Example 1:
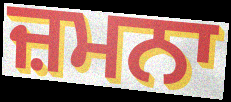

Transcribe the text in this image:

ਜ਼ਮਨਾ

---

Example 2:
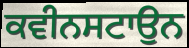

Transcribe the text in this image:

ਕਵੀਨਸਟਾਉਨ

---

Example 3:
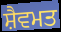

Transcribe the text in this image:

ਸ਼ੈਵਮਤ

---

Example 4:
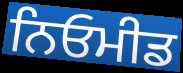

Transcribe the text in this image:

ਨਿਓਮੀਡ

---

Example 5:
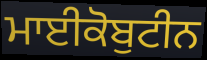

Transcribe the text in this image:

ਮਾਈਕੋਬੁਟੀਨ